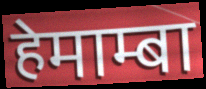
हेमाम्बा